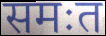
समःत